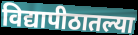
विद्यापीठातल्या